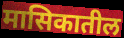
मासिकातील